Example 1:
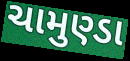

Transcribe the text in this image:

ચામુણ્ડા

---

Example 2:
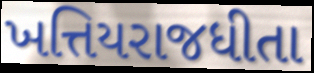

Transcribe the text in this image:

ખત્તિયરાજધીતા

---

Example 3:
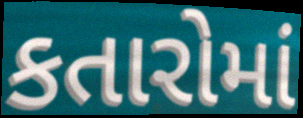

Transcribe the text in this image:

કતારોમાં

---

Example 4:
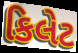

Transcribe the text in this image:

કિલેટ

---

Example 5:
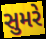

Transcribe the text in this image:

સુમરે